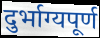
दुर्भाग्यपूर्ण